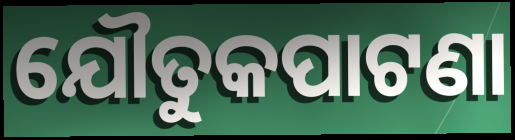
ଯୌତୁକପାଟଣା